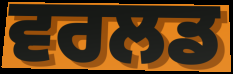
ਵਰਲਡ